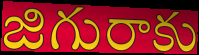
జిగురాకు